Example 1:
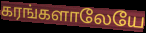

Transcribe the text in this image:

கரங்களாலேயே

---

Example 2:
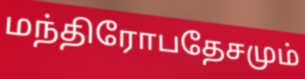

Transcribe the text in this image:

மந்திரோபதேசமும்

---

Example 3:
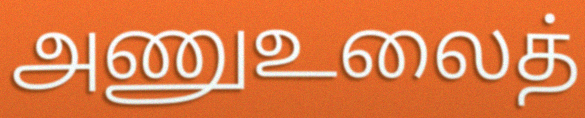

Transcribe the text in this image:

அணுஉலைத்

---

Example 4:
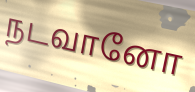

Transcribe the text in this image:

நடவானோ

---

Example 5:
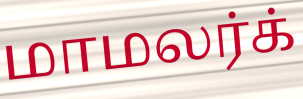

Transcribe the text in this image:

மாமலர்க்